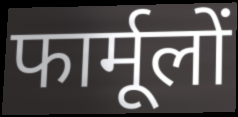
फार्मूलों